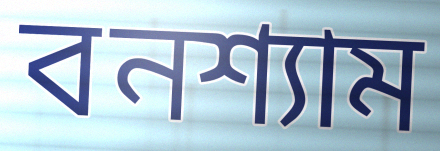
বনশ্যাম